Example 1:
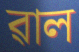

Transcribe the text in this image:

ৱাল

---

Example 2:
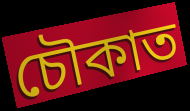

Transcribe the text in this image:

চৌকাত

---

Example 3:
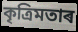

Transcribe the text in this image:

কৃত্ৰিমতাৰ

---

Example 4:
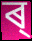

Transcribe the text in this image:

ৰ্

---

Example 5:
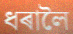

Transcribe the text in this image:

ধৰালৈ